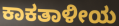
ಕಾಕತಾಳೀಯ